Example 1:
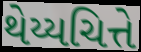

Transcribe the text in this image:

થેય્યચિત્તે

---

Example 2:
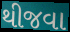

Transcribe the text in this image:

થીજવા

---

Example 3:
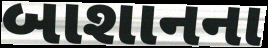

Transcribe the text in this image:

બાશાનના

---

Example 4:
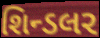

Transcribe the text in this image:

શિન્ડલર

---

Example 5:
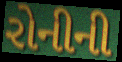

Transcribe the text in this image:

રોનીની